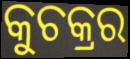
କୁଚକ୍ରର